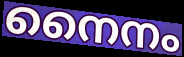
നൈനം